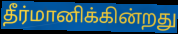
தீர்மானிக்கின்றது